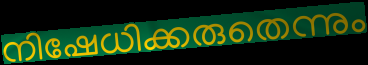
നിഷേധിക്കരുതെന്നും